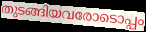
തുടങ്ങിയവരോടൊപ്പം